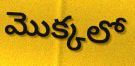
మొక్కలో